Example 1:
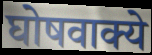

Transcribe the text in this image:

घोषवाक्ये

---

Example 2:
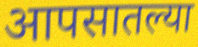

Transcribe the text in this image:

आपसातल्या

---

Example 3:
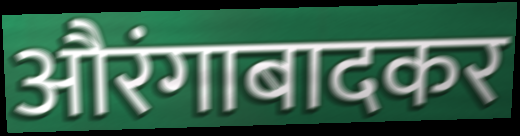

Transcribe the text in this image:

औरंगाबादकर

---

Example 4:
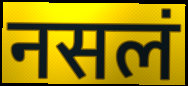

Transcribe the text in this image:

नसलं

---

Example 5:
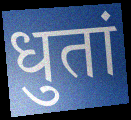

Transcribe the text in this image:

धुतां